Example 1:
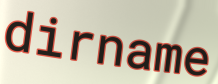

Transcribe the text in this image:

dirname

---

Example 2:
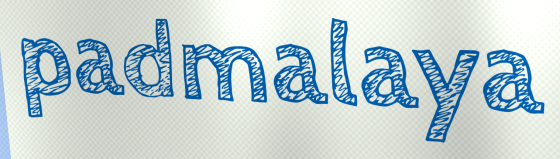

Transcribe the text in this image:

padmalaya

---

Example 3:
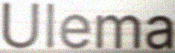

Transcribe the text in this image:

Ulema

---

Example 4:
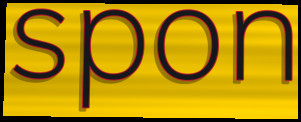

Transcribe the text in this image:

spon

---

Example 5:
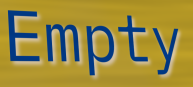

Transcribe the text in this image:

Empty